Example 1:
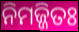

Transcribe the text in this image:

ନିମଜ୍ଜିତଃ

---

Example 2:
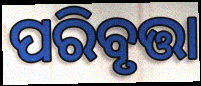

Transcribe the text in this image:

ପରିବୃତ୍ତା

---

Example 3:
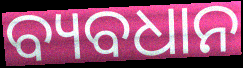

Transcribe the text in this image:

ବ୍ୟବଧାନ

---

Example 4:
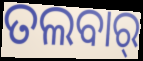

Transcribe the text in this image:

ତଲବାର୍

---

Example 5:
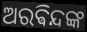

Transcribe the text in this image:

ଅରଵିନ୍ଦଙ୍କ